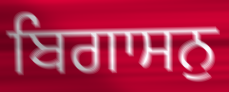
ਬਿਗਾਸਨੁ